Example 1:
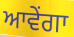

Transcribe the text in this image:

ਆਵੇਂਗਾ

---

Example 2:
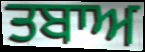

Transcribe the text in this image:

ਤਬਾਅ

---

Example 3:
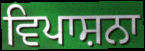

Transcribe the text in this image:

ਵਿਪਾਸ਼ਨਾ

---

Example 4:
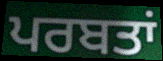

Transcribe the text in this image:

ਪਰਬਤਾਂ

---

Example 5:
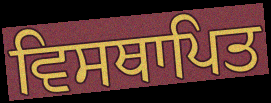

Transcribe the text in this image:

ਵਿਸਥਾਪਿਤ